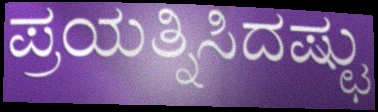
ಪ್ರಯತ್ನಿಸಿದಷ್ಟು